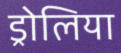
ड्रोलिया